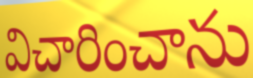
విచారించాను